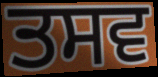
ਤਸਵ